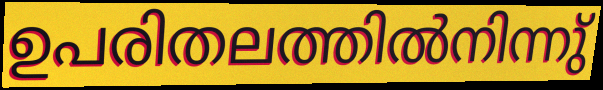
ഉപരിതലത്തിൽനിന്നു്